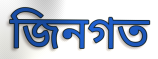
জিনগত